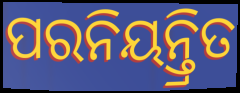
ପରନିୟନ୍ତ୍ରିତ